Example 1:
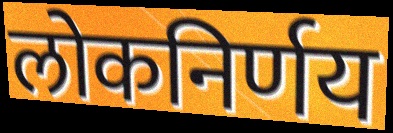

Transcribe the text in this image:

लोकनिर्णय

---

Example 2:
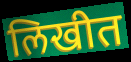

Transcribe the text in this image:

लिखीत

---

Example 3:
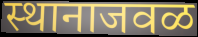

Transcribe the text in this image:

स्थानाजवळ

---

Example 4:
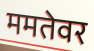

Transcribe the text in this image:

ममतेवर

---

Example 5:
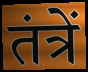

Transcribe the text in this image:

तंत्रें